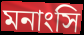
মনাংসি